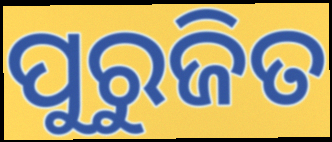
ପୁରୁଜିତ